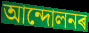
আন্দোলনৰ